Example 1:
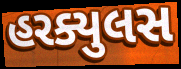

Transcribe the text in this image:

હરક્યુલસ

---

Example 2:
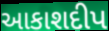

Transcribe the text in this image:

આકાશદીપ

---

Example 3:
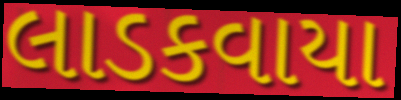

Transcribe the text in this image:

લાડકવાયા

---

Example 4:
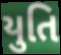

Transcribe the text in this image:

યુતિ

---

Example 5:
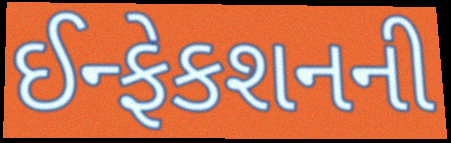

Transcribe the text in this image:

ઈન્ફેકશનની